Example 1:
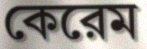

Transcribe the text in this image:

কেরেম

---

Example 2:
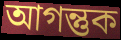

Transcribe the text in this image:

আগন্তুক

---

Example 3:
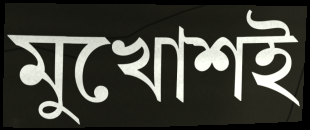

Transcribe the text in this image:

মুখোশই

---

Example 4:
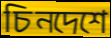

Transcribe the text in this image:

চিনদেশে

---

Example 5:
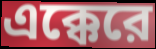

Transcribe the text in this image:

এক্কেরে